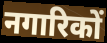
नगारिकों